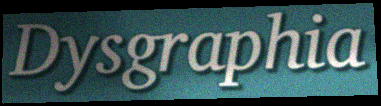
Dysgraphia